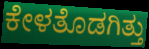
ಕೇಳತೊಡಗಿತ್ತು